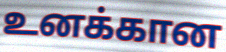
உனக்கான